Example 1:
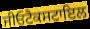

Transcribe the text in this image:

ਜੀਓਟੈਕਸਟਾਇਲ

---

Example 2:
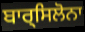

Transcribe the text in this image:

ਬਾਰ੍ਸਿਲੋਨਾ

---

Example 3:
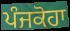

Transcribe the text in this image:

ਪੰਜਕੋਹਾ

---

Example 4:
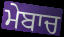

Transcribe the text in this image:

ਮੇਬਾਚ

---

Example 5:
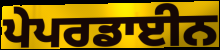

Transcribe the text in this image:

ਪੇਪਰਡਾਈਨ